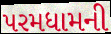
પરમધામની